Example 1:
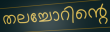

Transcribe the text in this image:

തലച്ചോറിന്റെ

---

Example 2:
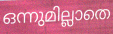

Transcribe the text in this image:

ഒന്നുമില്ലാതെ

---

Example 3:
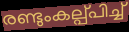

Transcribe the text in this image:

രണ്ടുംകല്പ്പിച്ച്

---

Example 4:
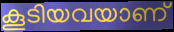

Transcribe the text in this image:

കൂടിയവയാണ്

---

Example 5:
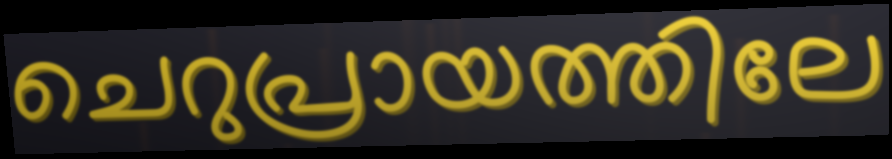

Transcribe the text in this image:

ചെറുപ്രായത്തിലേ